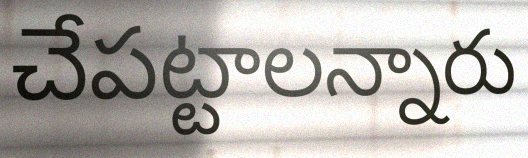
చేపట్టాలన్నారు